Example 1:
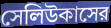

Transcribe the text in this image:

সেলিউকাসের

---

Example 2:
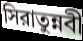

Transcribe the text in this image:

সিরাতুন্নবী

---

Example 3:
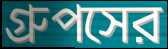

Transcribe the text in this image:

গ্রুপসের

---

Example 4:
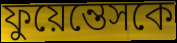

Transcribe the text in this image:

ফুয়েন্তেসকে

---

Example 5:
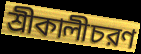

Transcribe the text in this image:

শ্রীকালীচরণ